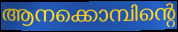
ആനക്കൊമ്പിന്റെ